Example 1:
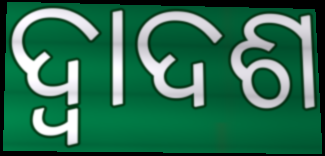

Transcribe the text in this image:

ଦ୍ୱାଦଶ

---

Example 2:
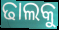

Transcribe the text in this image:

ଢାଲକୁ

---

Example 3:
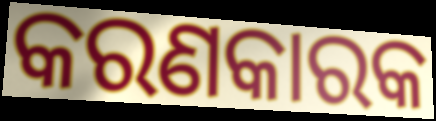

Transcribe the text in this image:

କରଣକାରକ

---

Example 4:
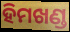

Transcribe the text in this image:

ହିମଖଣ୍ଡ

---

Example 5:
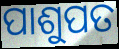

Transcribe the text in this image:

ପାଶୁପତ